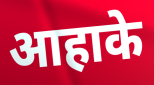
आहाके